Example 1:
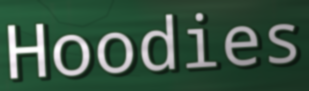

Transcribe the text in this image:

Hoodies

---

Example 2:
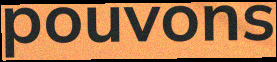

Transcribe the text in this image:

pouvons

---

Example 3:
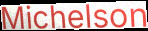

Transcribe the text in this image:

Michelson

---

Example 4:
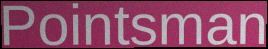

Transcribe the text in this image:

Pointsman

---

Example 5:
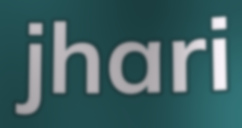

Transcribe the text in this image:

jhari